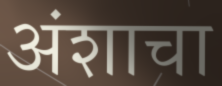
अंशाचा